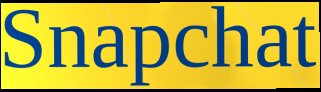
Snapchat